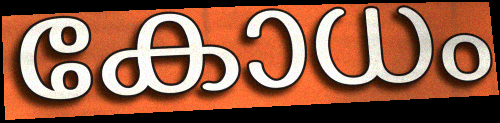
കോധം